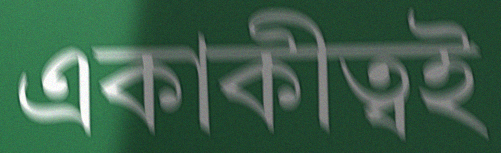
একাকীত্বই